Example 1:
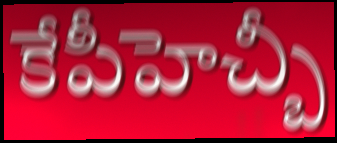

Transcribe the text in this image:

కేపీహెచ్బీ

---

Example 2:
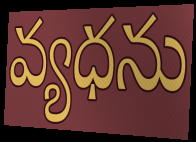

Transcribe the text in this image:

వ్యధను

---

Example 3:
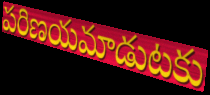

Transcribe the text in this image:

పరిణయమాడుటకు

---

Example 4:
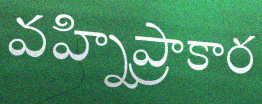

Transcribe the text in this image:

వహ్నిప్రాకార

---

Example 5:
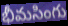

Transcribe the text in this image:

భీమసింగు